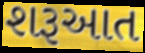
શરૂઆત